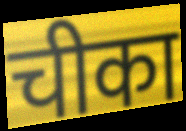
चीका